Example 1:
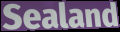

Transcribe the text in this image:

Sealand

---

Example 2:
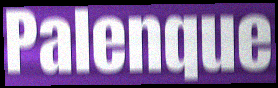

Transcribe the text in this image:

Palenque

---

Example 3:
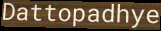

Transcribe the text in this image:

Dattopadhye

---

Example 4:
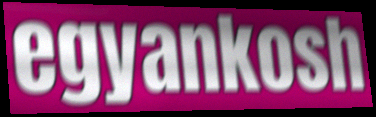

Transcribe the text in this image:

egyankosh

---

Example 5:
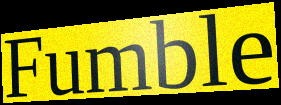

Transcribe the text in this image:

Fumble